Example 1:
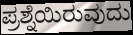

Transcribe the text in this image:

ಪ್ರಶ್ನೆಯಿರುವುದು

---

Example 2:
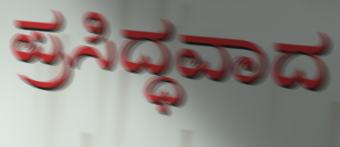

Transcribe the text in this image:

ಪ್ರಸಿದ್ಧವಾದ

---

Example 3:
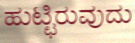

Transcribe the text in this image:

ಹುಟ್ಟಿರುವುದು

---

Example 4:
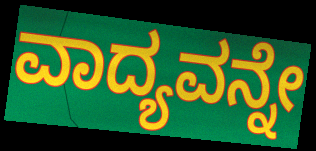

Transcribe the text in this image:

ವಾದ್ಯವನ್ನೇ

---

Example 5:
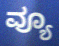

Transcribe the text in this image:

ವ್ಯೂ